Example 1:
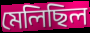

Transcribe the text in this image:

মেলিছিল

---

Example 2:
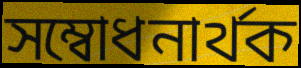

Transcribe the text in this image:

সম্বোধনাৰ্থক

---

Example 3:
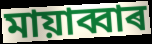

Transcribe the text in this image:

মায়াব্বাৰ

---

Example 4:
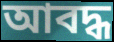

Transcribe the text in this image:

আবদ্ধ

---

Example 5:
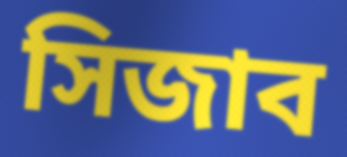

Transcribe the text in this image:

সিজাব